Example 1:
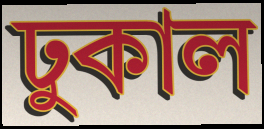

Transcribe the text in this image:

ঢুকাল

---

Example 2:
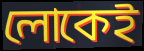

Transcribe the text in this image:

লোকেই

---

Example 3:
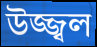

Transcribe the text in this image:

উজ্জ্বল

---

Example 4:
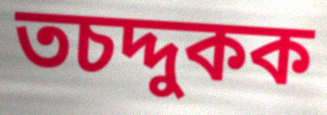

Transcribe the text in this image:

তচদ্দুকক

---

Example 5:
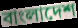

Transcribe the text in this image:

বাংলাদেশ